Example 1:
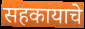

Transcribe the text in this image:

सहकायाचे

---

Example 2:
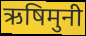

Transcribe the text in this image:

ऋषिमुनी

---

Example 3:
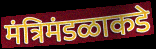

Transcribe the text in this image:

मंत्रिमंडळाकडे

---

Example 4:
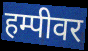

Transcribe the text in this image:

हम्पीवर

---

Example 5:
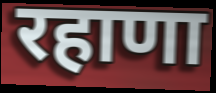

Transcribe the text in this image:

रहाणा